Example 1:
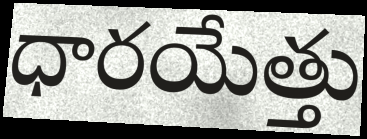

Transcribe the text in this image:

ధారయేత్తు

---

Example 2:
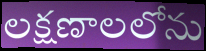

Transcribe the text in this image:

లక్షణాలలోను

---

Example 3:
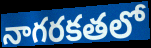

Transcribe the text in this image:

నాగరకతలో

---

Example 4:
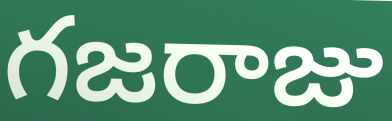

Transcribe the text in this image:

గజరాజు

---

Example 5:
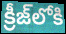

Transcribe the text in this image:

క్రీజ్‌లోకి